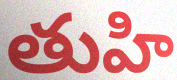
తుహి